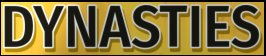
DYNASTIES